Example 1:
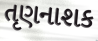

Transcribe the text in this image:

તૃણનાશક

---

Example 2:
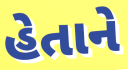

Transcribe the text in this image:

હેતાને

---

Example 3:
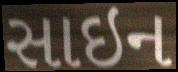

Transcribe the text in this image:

સાઇન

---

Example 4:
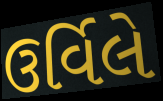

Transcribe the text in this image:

ઉર્વિલે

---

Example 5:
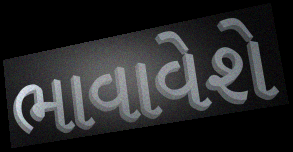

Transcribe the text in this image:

ભાવાવેશે